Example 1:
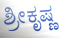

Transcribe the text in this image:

ಶ್ರೀಕೃಷ್ಣ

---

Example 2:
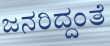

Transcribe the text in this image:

ಜನರಿದ್ದಂತೆ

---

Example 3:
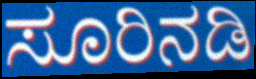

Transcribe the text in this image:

ಸೂರಿನಡಿ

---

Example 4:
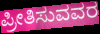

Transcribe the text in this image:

ಪ್ರೀತಿಸುವವರ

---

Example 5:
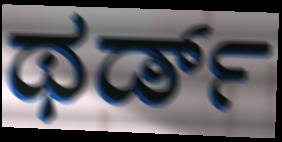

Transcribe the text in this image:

ಥರ್ಡ್